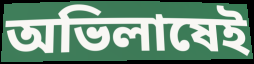
অভিলাষেই